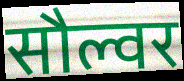
सौल्वर